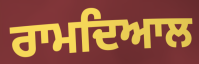
ਰਾਮਦਿਆਲ